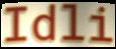
Idli